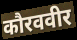
कौरववीर